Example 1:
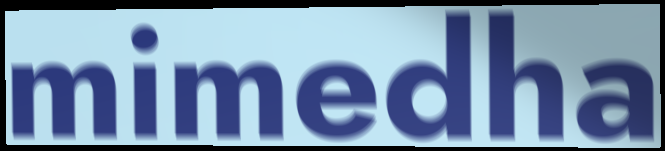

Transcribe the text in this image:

mimedha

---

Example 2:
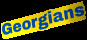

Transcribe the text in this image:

Georgians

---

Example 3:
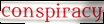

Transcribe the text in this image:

conspiracy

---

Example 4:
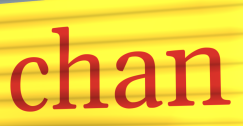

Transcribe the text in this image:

chan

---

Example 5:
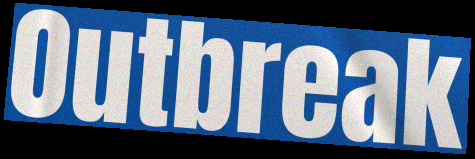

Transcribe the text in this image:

Outbreak